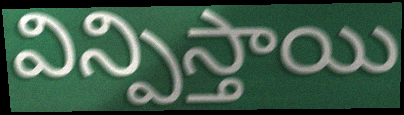
విన్పిస్తాయి